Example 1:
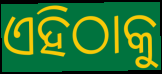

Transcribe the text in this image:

ଏହିଠାକୁ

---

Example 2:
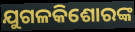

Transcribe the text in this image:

ଯୁଗଳକିଶୋରଙ୍କ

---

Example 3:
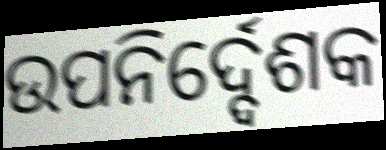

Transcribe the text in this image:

ଉପନିର୍ଦ୍ଦେଶକ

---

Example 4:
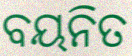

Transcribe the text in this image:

ବୟନିତ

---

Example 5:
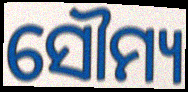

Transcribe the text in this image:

ସୌମ୍ଯ